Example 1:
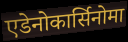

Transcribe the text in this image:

एडेनोकार्सिनोमा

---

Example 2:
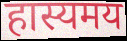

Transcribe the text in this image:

हास्यमय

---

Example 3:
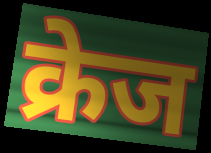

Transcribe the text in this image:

क्रेज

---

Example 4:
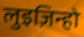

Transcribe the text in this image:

लुइज़िन्हो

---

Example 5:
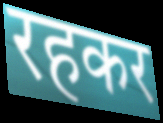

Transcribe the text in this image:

रहकर